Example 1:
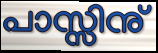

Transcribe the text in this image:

പാസ്സിനു്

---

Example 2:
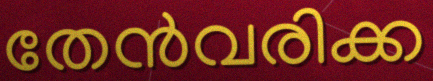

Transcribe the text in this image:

തേൻവരിക്ക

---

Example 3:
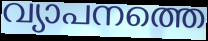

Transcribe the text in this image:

വ്യാപനത്തെ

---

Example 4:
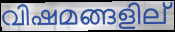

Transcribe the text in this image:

വിഷമങ്ങളില്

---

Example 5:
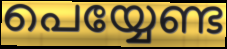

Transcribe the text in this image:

പെയ്യേണ്ട